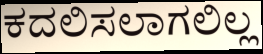
ಕದಲಿಸಲಾಗಲಿಲ್ಲ